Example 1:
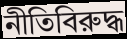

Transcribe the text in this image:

নীতিবিরুদ্ধ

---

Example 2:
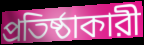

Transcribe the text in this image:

প্রতিষ্ঠাকারী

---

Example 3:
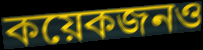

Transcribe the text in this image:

কয়েকজনও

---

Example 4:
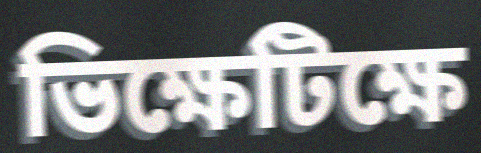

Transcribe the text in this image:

ভিক্ষেটিক্ষে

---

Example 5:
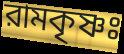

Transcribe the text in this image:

রামকৃষ্ণঃ